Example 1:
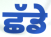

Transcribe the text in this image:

ਛੱਡੇ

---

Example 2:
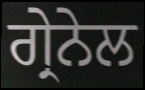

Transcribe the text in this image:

ਗ੍ਰੇਨੇਲ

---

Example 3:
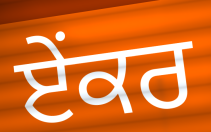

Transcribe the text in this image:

ਏੰਕਰ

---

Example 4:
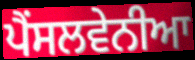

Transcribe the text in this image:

ਪੈਂਸਲਵੇਨੀਆ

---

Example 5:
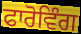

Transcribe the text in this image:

ਫਾਰੋਵਿੰਗ